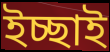
ইচ্ছাই